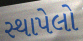
સ્થાપેલો